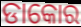
ଡାକୋର